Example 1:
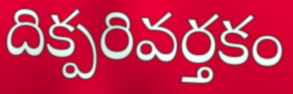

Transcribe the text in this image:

దిక్పరివర్తకం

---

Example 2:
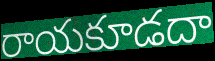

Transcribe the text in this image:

రాయకూడదా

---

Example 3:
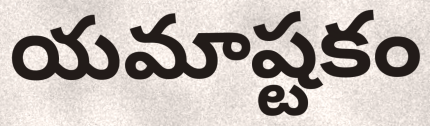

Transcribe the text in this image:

యమాష్టకం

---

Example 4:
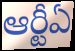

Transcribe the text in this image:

ఆర్టీఏ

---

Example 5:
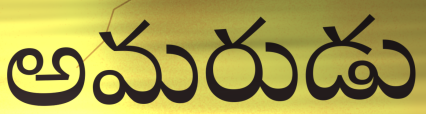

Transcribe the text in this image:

అమరుడు